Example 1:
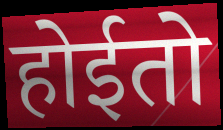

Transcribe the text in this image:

होईतो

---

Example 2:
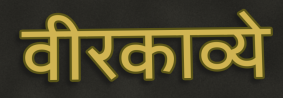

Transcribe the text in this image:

वीरकाव्ये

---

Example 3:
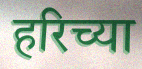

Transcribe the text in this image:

हरिच्या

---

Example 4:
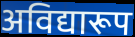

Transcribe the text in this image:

अविद्यारूप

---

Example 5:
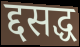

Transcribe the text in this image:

द्दसद्ध